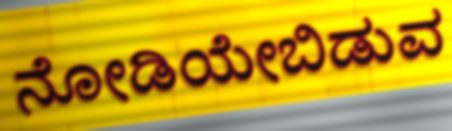
ನೋಡಿಯೇಬಿಡುವ